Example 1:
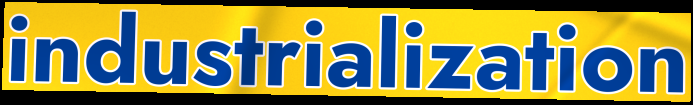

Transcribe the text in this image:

industrialization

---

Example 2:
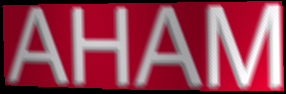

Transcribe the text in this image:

AHAM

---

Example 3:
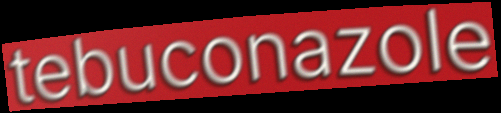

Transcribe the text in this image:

tebuconazole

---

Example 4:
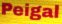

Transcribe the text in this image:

Peigal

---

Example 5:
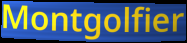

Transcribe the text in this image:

Montgolfier